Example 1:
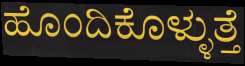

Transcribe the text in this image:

ಹೊಂದಿಕೊಳ್ಳುತ್ತೆ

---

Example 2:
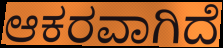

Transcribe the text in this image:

ಆಕರವಾಗಿದೆ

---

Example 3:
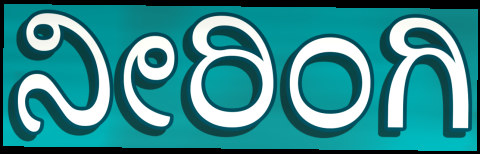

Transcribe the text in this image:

ನೀರಿಂಗಿ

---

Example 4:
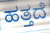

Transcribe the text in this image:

ಹತ್ತದೆ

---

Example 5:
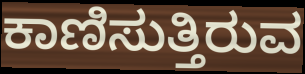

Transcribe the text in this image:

ಕಾಣಿಸುತ್ತಿರುವ